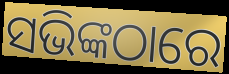
ସଭିଙ୍କଠାରେ